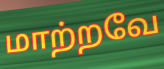
மாற்றவே